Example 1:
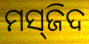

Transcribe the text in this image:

ମସ୍‌ଜିଦ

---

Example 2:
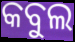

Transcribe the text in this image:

କବୁଲ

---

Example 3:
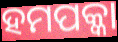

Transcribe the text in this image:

ହମପକ୍କା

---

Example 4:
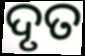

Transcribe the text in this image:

ଦୃତ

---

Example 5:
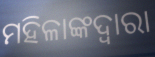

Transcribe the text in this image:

ମହିଳାଙ୍କଦ୍ୱାରା